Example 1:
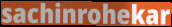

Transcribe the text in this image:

sachinrohekar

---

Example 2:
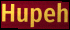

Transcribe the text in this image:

Hupeh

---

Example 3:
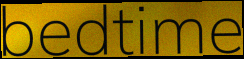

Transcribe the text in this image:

bedtime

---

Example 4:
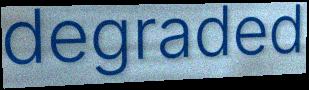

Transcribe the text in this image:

degraded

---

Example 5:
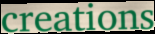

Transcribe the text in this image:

creations